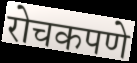
रोचकपणे